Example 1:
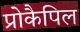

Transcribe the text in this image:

प्रोकैपिल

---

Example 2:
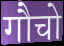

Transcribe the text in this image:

गौचो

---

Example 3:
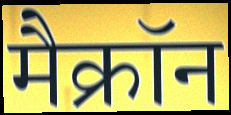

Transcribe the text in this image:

मैक्रॉन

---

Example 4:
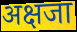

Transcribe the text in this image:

अक्षजा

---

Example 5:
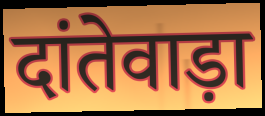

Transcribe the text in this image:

दांतेवाड़ा